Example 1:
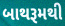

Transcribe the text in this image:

બાથરૂમથી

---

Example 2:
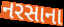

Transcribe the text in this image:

નરસાના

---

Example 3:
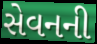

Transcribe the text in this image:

સેવનની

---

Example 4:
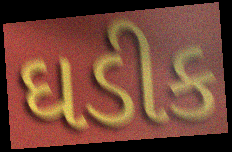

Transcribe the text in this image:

ઘડીક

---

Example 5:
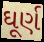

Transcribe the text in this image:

ઘૂર્ણ